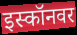
इस्कॉनवर